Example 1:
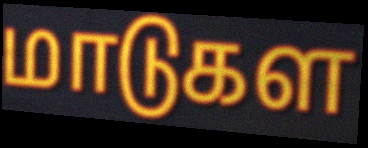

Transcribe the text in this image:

மாடுகள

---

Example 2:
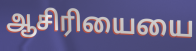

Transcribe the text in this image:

ஆசிரியையை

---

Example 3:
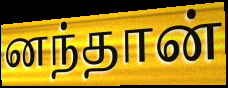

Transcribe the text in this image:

னந்தான்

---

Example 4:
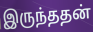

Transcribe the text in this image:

இருந்ததன்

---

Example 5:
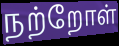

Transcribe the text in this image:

நற்றோள்